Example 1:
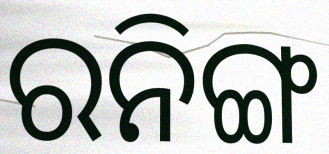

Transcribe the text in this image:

ରନିଙ୍ଗ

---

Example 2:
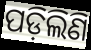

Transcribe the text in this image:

ପଡ଼ିଲିଣି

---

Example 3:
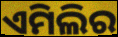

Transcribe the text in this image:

ଏମିଲିର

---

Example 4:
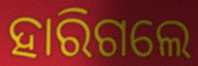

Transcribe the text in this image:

ହାରିଗଲେ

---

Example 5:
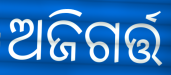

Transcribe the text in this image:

ଅଜିଗର୍ତ୍ତ